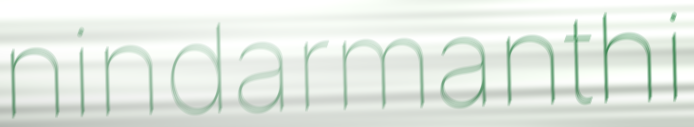
nindarmanthi